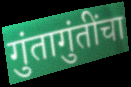
गुंतागुंतींचा